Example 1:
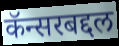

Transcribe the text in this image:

कॅन्सरबद्दल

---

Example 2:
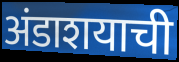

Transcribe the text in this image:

अंडाशयाची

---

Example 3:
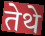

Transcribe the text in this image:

तेथे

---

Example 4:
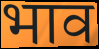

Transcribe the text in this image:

भाव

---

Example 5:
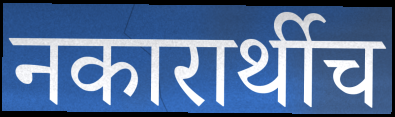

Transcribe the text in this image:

नकारार्थीच